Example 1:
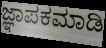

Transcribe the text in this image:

ಜ್ಞಾಪಕಮಾಡಿ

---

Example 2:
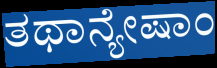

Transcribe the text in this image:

ತಥಾನ್ಯೇಷಾಂ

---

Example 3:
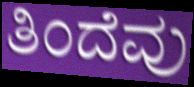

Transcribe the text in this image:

ತಿಂದೆವು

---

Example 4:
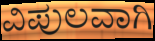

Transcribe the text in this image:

ವಿಪುಲವಾಗಿ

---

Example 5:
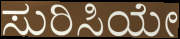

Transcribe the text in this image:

ಸುರಿಸಿಯೇ